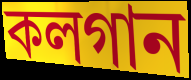
কলগান